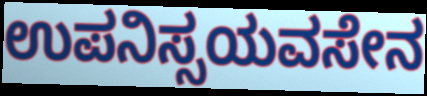
ಉಪನಿಸ್ಸಯವಸೇನ